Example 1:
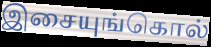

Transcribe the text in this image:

இசையுங்கொல்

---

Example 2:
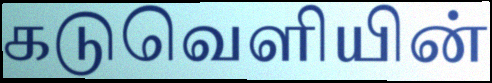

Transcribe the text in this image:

கடுவெளியின்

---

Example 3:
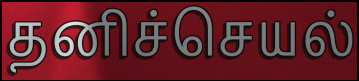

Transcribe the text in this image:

தனிச்செயல்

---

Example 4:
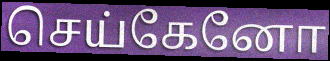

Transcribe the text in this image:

செய்கேனோ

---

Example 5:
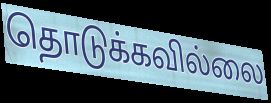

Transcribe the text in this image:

தொடுக்கவில்லை